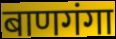
बाणगंगा